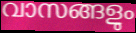
വാസങ്ങളും